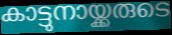
കാട്ടുനായ്ക്കരുടെ